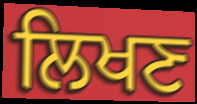
ਲਿਖਣ